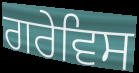
ਗਰੇਵਿਸ